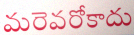
మరెవరోకాదు